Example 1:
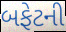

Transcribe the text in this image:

બફેટની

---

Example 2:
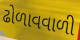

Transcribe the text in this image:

ઢોળાવવાળી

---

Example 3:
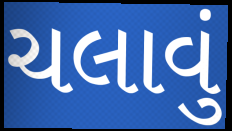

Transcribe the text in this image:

ચલાવું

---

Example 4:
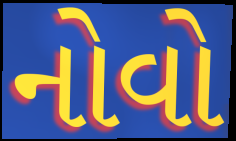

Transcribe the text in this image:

નોવો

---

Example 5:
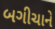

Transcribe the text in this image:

બગીચાને